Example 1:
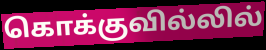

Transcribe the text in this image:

கொக்குவில்லில்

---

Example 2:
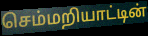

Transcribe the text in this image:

செம்மறியாட்டின்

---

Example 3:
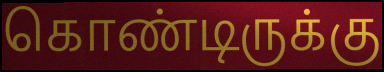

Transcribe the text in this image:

கொண்டிருக்கு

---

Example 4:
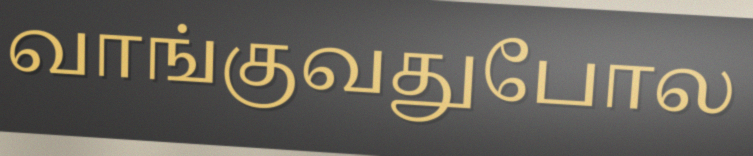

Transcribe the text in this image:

வாங்குவதுபோல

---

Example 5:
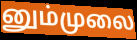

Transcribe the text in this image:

னும்முலை